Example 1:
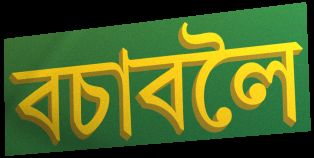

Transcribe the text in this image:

বচাবলৈ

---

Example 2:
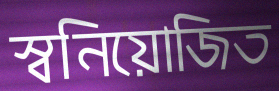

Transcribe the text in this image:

স্বনিয়োজিত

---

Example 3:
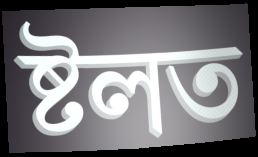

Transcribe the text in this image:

ষ্টলত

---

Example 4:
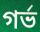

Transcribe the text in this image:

গৰ্ভ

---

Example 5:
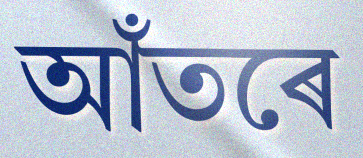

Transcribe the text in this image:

আঁতৰে